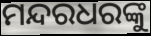
ମନ୍ଦରଧରଙ୍କୁ